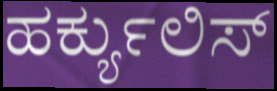
ಹರ್ಕ್ಯುಲಿಸ್